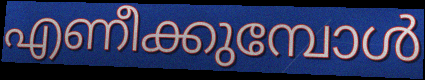
എണീക്കുമ്പോൾ